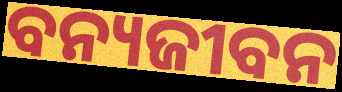
ବନ୍ୟଜୀବନ